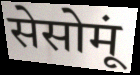
सेसोमूं